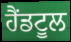
ਹੈਂਡਟੂਲ